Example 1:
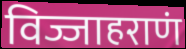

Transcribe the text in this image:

विज्जाहराणं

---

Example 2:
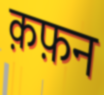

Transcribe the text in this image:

क़फ़न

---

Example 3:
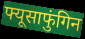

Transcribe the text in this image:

फ्यूसाफुंगिन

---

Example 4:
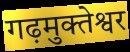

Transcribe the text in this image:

गढ़मुक्तेश्वर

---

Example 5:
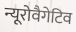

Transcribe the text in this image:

न्यूरोवैगेटिव